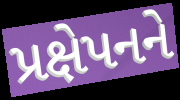
પ્રક્ષેપનને